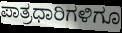
ಪಾತ್ರಧಾರಿಗಳಿಗೂ